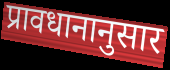
प्रावधानानुसार